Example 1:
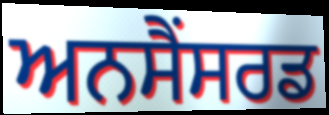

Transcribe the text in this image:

ਅਨਸੈਂਸਰਡ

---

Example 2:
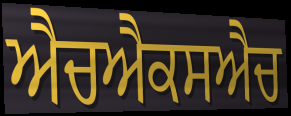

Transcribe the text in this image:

ਐਚਐਕਸਐਚ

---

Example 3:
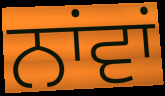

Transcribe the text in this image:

ਨਾਂਵਾਂ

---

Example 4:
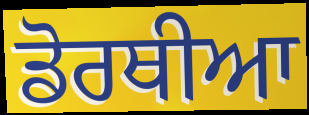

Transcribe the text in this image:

ਡੋਰਥੀਆ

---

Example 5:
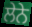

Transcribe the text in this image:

ਲੇਨੇ